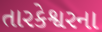
તારકેશ્વરના